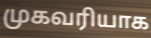
முகவரியாக